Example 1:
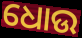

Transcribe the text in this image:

ଧୋଉ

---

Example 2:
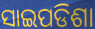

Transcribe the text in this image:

ସାଇପଡିଶା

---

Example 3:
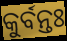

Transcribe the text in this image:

କୁର୍ବନ୍ତଃ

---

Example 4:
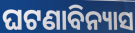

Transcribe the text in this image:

ଘଟଣାବିନ୍ୟାସ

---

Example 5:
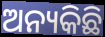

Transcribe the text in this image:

ଅନ୍ୟକିଛି